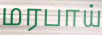
மரபாய்